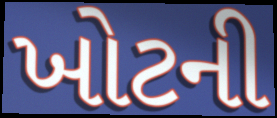
ખોટની